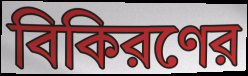
বিকিরণের